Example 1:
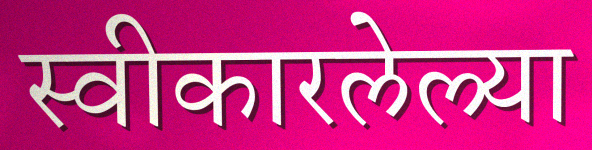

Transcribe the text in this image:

स्वीकारलेल्या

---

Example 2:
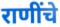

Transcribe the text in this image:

राणींचे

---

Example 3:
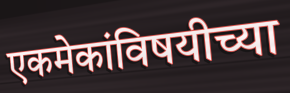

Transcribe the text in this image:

एकमेकांविषयीच्या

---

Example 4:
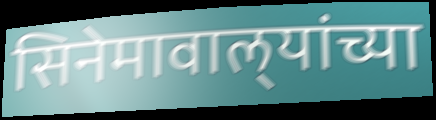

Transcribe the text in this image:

सिनेमावाल्यांच्या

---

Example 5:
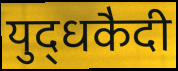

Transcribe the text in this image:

युद्धकैदी